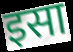
इसा